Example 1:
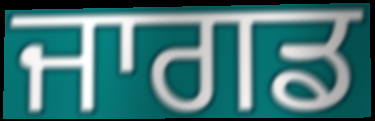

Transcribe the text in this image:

ਜਾਗਡ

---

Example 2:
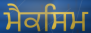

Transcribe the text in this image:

ਮੈਕਸਿਮ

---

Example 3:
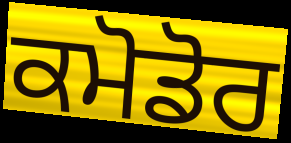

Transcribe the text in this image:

ਕਮੋਡੋਰ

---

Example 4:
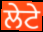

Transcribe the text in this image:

ਲੇਟੇ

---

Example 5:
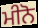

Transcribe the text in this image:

ਮੀਨੋ